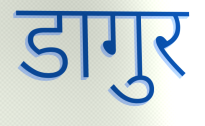
डागुर